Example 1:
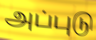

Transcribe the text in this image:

அப்புடு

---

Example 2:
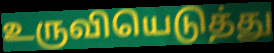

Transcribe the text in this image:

உருவியெடுத்து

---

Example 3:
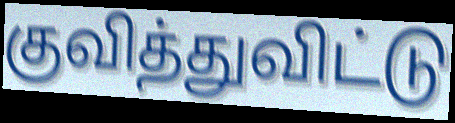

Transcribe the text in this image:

குவித்துவிட்டு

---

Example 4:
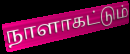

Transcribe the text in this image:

நாளாகட்டும்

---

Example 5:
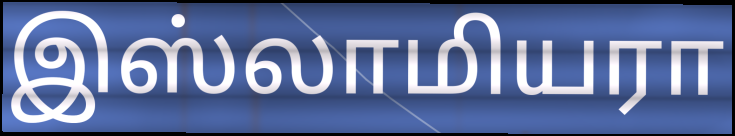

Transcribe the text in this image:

இஸ்லாமியரா